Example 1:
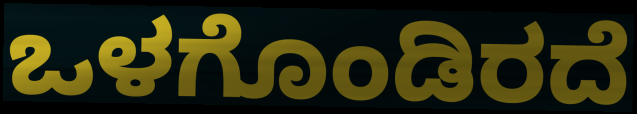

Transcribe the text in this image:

ಒಳಗೊಂಡಿರದೆ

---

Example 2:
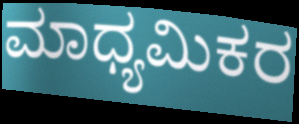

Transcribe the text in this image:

ಮಾಧ್ಯಮಿಕರ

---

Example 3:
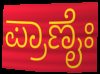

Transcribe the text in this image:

ಪ್ರಾಣೈಃ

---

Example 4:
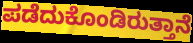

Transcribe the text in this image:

ಪಡೆದುಕೊಂಡಿರುತ್ತಾನೆ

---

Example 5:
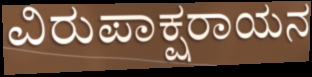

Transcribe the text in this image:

ವಿರುಪಾಕ್ಷರಾಯನ